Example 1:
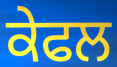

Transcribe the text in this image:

ਕੇਫਲ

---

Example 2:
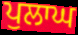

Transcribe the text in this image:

ਪੁਲਾਘ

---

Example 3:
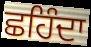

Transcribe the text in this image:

ਛਹਿੰਦਾ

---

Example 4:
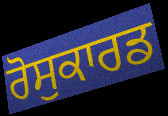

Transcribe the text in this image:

ਰੋਸੁਕਾਰਡ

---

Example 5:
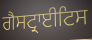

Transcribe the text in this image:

ਗੈਸਟ੍ਰਾਈਟਿਸ